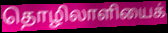
தொழிலாளியைக்